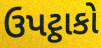
ઉપટ્ઠાકો